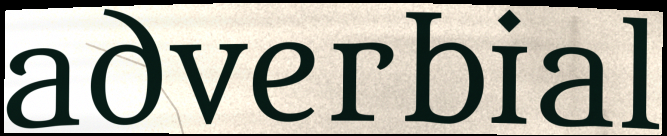
adverbial